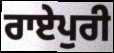
ਰਾਏਪੁਰੀ